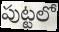
పుట్టలో